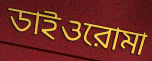
ডাইওরোমা